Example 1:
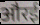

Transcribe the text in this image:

औरई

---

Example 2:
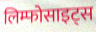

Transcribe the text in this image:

लिम्फोसाइट्स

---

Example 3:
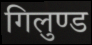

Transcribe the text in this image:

गिलुण्ड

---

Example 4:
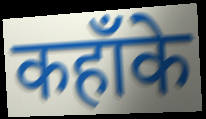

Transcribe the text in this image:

कहाँके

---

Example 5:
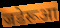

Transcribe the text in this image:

जडेरूआ